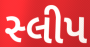
સ્લીપ